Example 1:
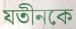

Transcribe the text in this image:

যতীনকে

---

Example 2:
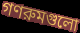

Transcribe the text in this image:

গণরুমগুলো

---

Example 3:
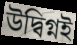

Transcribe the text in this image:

উদ্বিগ্নই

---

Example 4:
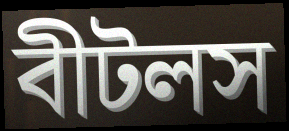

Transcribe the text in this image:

বীটলস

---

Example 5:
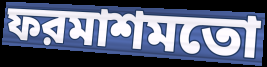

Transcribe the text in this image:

ফরমাশমতো